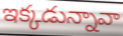
ఇక్కడున్నావా